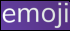
emoji